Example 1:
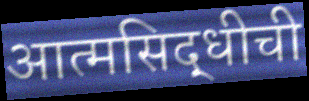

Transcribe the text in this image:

आत्मसिद्धीची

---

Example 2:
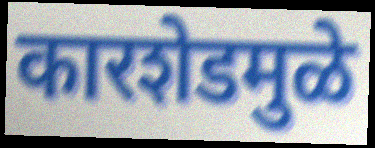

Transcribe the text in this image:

कारशेडमुळे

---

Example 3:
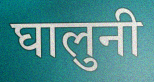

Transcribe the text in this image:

घालुनी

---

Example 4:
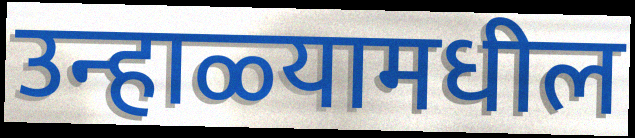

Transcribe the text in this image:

उन्हाळ्यामधील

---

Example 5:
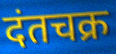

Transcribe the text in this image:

दंतचक्र